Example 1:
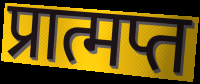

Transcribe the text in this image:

प्रात्मप्त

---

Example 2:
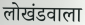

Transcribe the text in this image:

लोखंडवाला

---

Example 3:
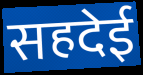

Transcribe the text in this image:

सहदेई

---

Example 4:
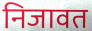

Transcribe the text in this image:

निजावत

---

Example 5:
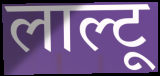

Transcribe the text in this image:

लाल्‍टू